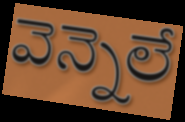
వెన్నెలే